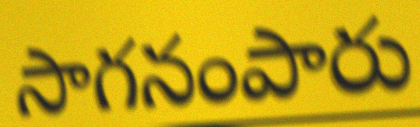
సాగనంపారు